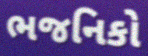
ભજનિકો